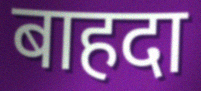
बाहदा